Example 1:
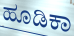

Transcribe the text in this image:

ಹೂಡಿಕಾ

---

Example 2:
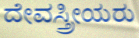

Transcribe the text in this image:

ದೇವಸ್ತ್ರೀಯರು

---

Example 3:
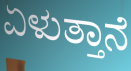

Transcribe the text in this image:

ಏಳುತ್ತಾನೆ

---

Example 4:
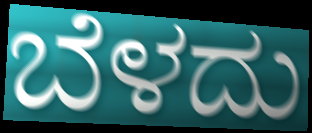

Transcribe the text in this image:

ಬೆಳದು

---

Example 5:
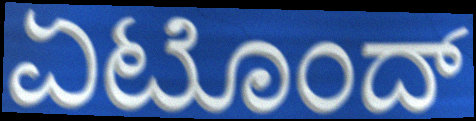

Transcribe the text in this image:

ಏಟೊಂದ್